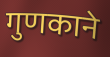
गुणकाने